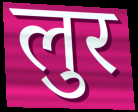
लुर